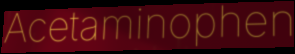
Acetaminophen